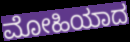
ಮೋಹಿಯಾದ